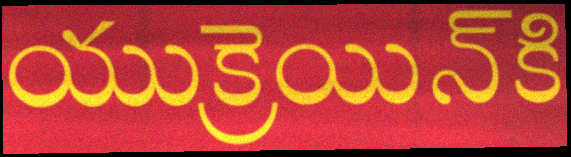
యుక్రెయిన్‌కి